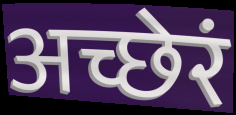
अच्छेरं